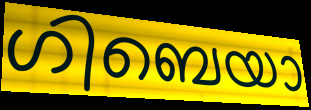
ഗിബെയാ